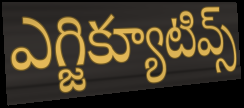
ఎగ్జిక్యూటివ్స్